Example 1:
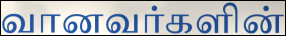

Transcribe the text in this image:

வானவர்களின்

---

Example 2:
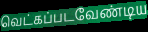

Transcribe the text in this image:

வெட்கப்படவேண்டிய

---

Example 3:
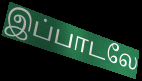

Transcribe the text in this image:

இப்பாடலே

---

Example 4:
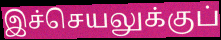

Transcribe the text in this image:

இச்செயலுக்குப்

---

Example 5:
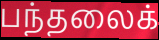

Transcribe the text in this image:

பந்தலைக்